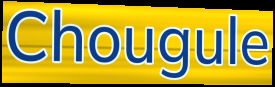
Chougule